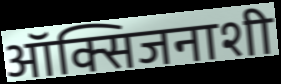
ऑक्सिजनाशी